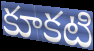
కూకటి